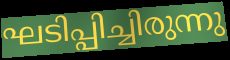
ഘടിപ്പിച്ചിരുന്നു